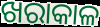
ଖରାକାଳ